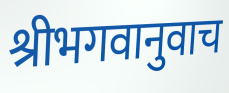
श्रीभगवानुवाच